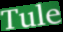
Tule